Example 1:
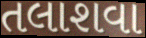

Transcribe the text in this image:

તલાશવા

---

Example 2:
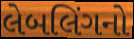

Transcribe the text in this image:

લેબલિંગનો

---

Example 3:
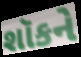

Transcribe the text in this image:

શૉકને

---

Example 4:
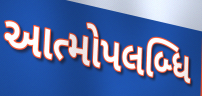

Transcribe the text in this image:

આત્મોપલબ્ધિ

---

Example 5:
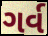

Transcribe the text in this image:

ગર્વ